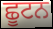
ਛੂਟਨ